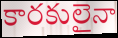
కారకులైనా